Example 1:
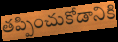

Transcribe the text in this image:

తప్పించుకోడానికి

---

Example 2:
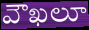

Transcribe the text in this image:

వౌఖలూ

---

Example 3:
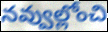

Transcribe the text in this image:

నవ్వుల్లోంచి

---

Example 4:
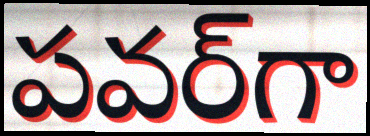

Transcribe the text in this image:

పవర్‌గా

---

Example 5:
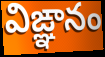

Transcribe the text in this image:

విఙ్ఞానం